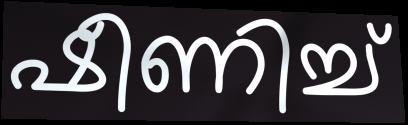
ഷീണിച്ച്